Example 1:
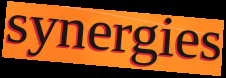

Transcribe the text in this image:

synergies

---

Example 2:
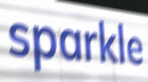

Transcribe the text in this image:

sparkle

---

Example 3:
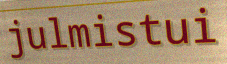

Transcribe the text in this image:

julmistui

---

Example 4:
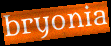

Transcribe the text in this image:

bryonia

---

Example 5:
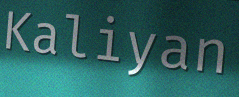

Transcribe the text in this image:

Kaliyan